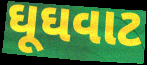
ઘૂઘવાટ